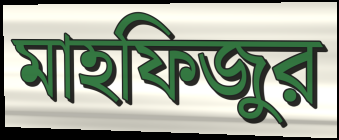
মাহফিজুর